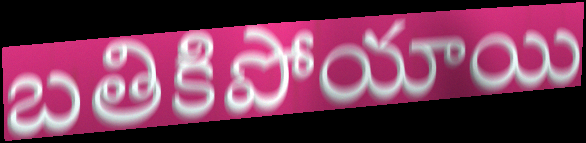
బతికిపోయాయి